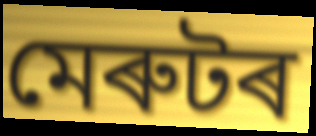
মেৰুটৰ